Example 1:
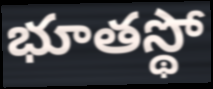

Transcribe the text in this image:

భూతస్థో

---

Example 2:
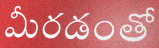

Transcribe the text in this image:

మీరడంతో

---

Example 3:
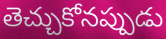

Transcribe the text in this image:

తెచ్చుకోనప్పుడు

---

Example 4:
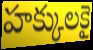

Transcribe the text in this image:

హక్కులకై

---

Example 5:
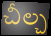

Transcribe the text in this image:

చీల్చ